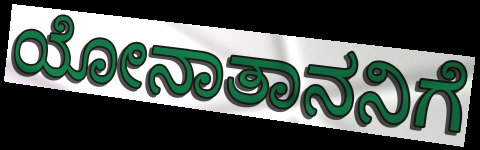
ಯೋನಾತಾನನಿಗೆ